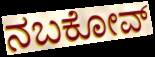
ನಬಕೋವ್